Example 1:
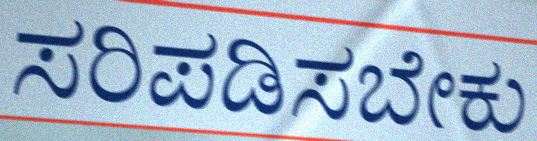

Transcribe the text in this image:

ಸರಿಪಡಿಸಬೇಕು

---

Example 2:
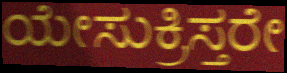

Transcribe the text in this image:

ಯೇಸುಕ್ರಿಸ್ತರೇ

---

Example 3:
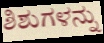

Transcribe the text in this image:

ಶಿಶುಗಳನ್ನು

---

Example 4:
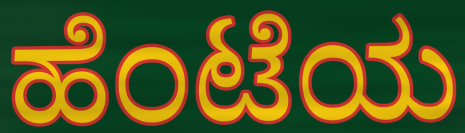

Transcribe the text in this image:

ಹೆಂಟೆಯ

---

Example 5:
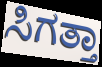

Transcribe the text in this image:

ಸಿಗತ್ತಾ